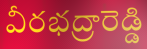
వీరభద్రారెడ్డి